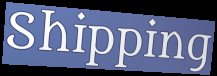
Shipping